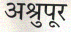
अश्रुपूर